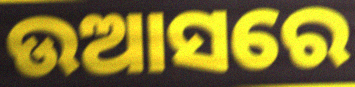
ଉଆସରେ